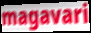
magavari